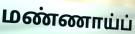
மண்ணாய்ப்